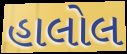
હાલોલ